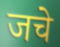
जचे